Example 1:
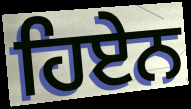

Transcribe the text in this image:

ਹਿਏਨ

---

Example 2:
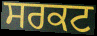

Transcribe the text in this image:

ਸਰਕਟ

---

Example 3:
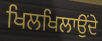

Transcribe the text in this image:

ਖਿਲਖਿਲਾਉਂਦੇ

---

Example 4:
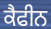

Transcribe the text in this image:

ਕੈਫੀਨ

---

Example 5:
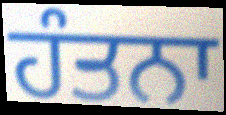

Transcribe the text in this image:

ਹੰਤਨਾ